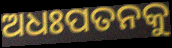
ଅଧଃପତନକୁ